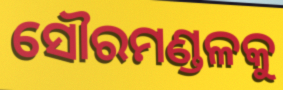
ସୌରମଣ୍ଡଳକୁ